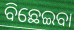
ବିଛେଇବା